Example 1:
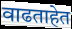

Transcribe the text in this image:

वाढताहेत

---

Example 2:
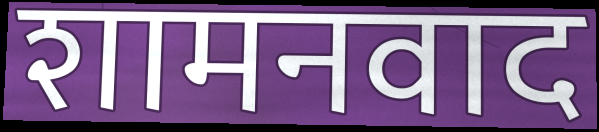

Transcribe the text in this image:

शामनवाद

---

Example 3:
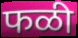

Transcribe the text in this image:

फळी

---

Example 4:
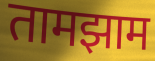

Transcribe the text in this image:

तामझाम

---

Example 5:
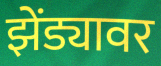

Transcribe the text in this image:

झेंड्यावर